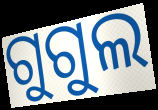
ଗୁଗୁଲ